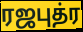
ரஜபுத்ர